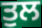
ਤੁਲ